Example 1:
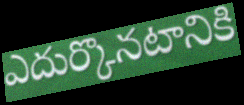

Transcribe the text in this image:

ఎదుర్కొనటానికి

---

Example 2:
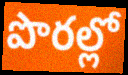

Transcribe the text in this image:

పొరల్లో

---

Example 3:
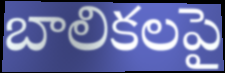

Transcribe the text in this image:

బాలికలపై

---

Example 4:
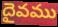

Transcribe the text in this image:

దైవము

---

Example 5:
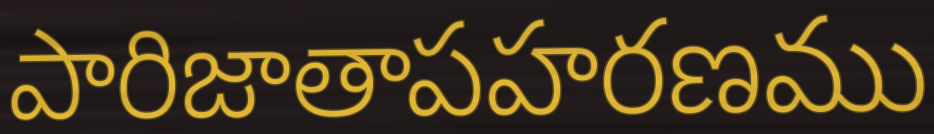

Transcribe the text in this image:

పారిజాతాపహరణము